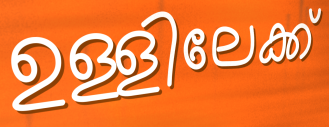
ഉള്ളിലേക്ക്